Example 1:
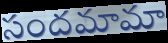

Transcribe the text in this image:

సందమామా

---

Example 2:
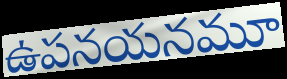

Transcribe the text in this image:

ఉపనయనమూ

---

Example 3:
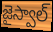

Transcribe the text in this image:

జైస్వాల్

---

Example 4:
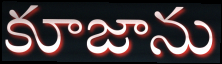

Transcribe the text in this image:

కూజాను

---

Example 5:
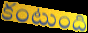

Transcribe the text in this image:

కంటుంది